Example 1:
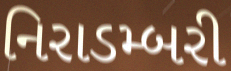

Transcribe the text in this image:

નિરાડમ્બરી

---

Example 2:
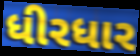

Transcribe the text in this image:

ધીરધાર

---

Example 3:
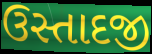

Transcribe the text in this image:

ઉસ્તાદજી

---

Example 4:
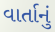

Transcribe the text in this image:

વાર્તાનું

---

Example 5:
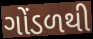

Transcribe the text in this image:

ગોંડળથી